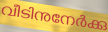
വീടിനുനേർക്കു